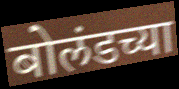
बोलंडच्या